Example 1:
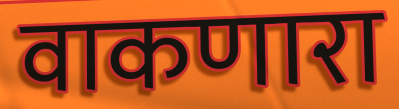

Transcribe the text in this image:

वाकणारा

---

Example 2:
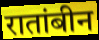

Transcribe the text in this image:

रातांबीन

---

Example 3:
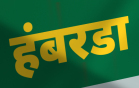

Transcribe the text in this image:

हंबरडा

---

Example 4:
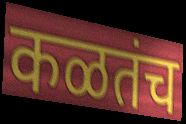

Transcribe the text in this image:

कळतंच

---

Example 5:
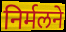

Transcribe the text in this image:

निर्मलने